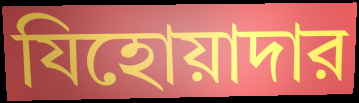
যিহোয়াদার